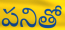
పనితో